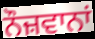
ਨੌਜ਼ਵਾਨਾਂ